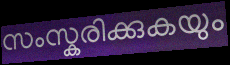
സംസ്കരിക്കുകയും